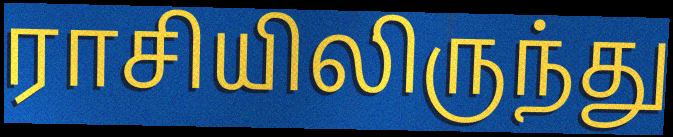
ராசியிலிருந்து